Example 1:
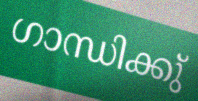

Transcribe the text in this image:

ഗാന്ധിക്കു്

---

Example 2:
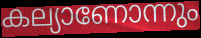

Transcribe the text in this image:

കല്യാണോന്നും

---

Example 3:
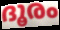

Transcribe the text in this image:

ദൂരം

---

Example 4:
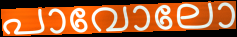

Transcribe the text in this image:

പാവോലോ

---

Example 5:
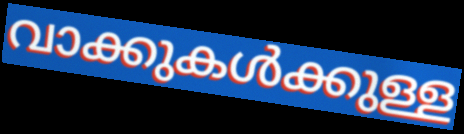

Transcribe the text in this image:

വാക്കുകൾക്കുള്ള